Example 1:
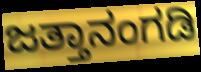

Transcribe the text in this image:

ಜತ್ತಾನಂಗಡಿ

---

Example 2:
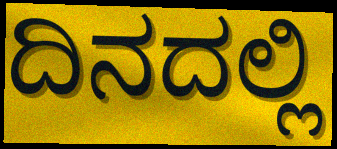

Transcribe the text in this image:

ದಿನದಲ್ಲಿ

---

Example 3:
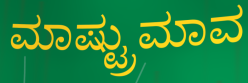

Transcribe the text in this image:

ಮಾಷ್ಟ್ರುಮಾವ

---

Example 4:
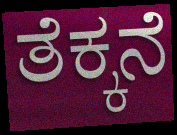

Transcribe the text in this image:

ತೆಕ್ಕನೆ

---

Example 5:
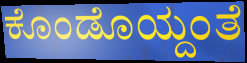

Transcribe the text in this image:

ಕೊಂಡೊಯ್ದಂತೆ